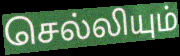
செல்லியும்